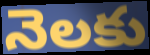
నెలకు